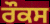
ਰੌਕਸ